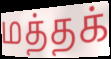
மத்தக்